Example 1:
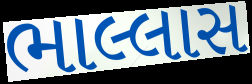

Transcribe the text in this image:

ભાલ્લાસ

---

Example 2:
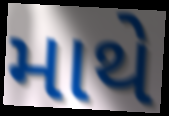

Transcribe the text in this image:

માથે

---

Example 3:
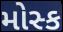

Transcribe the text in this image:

મોસ્ક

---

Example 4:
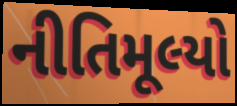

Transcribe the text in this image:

નીતિમૂલ્યો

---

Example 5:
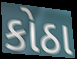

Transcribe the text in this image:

કોઠા